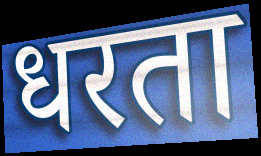
धरता